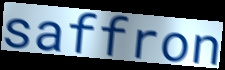
saffron